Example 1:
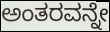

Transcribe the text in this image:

ಅಂತರವನ್ನೇ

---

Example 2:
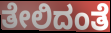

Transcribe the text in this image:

ತೇಲಿದಂತೆ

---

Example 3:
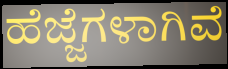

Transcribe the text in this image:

ಹೆಜ್ಜೆಗಳಾಗಿವೆ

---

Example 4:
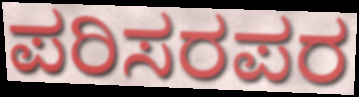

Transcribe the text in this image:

ಪರಿಸರಪರ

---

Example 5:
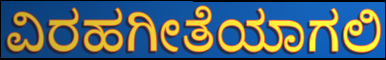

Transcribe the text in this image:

ವಿರಹಗೀತೆಯಾಗಲಿ